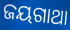
ଜୟଗାଥା